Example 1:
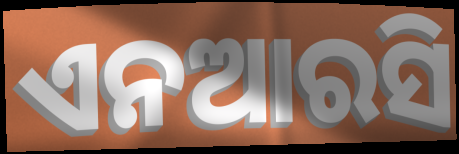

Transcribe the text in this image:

ଏନଆରସି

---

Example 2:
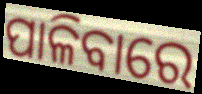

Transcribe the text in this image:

ପାଳିବାରେ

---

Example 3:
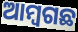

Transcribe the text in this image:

ଆମ୍ୱଗଛ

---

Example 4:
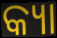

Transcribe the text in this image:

କ୍ୟା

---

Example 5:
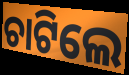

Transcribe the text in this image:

ଚାଟିଲେ